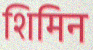
शिमिन